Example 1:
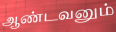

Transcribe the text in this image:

ஆண்டவனும்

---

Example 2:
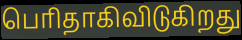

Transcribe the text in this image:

பெரிதாகிவிடுகிறது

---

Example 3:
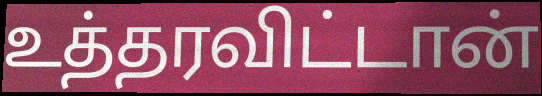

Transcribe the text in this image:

உத்தரவிட்டான்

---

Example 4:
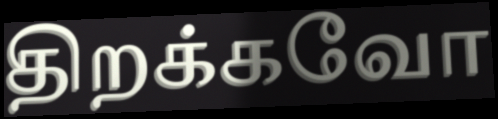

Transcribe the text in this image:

திறக்கவோ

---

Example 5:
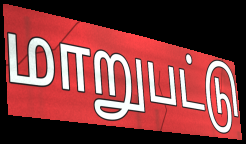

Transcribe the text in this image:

மாறுபட்டு